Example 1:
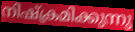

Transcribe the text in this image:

നിഷ്ക്രമിക്കുന്നു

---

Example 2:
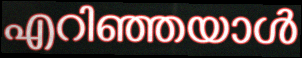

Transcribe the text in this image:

എറിഞ്ഞയാൾ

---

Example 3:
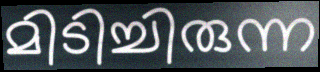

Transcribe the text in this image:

മിടിച്ചിരുന്ന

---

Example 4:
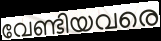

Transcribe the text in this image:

വേണ്ടിയവരെ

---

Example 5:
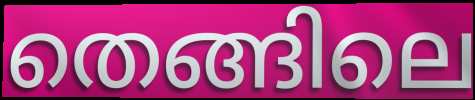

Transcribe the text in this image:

തെങ്ങിലെ